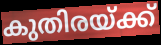
കുതിരയ്ക്ക്